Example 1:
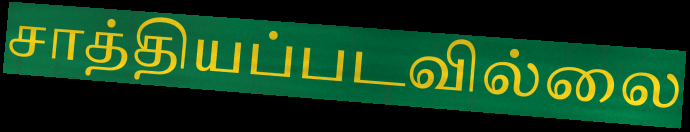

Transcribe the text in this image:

சாத்தியப்படவில்லை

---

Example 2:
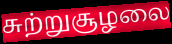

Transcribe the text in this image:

சுற்றுசூழலை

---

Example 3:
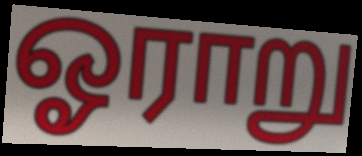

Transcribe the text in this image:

ஓராறு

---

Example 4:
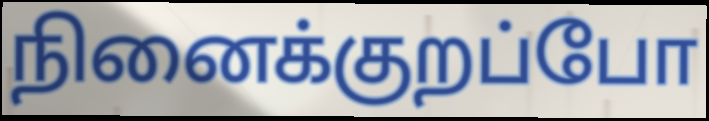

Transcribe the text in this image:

நினைக்குறப்போ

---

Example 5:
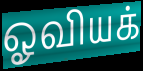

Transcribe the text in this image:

ஓவியக்